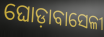
ଘୋଡ଼ାବାସେଳୀ